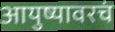
आयुष्यावरचं